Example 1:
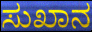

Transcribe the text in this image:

ಸುಖಾನ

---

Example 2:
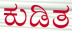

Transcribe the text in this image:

ಕುಡಿತ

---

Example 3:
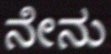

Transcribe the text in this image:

ನೇನು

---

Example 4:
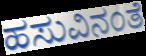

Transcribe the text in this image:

ಹಸುವಿನಂತೆ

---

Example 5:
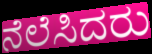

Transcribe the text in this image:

ನೆಲೆಸಿದರು